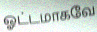
ஓட்டமாகவே